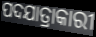
ପଦଯାତ୍ରାକାରୀ